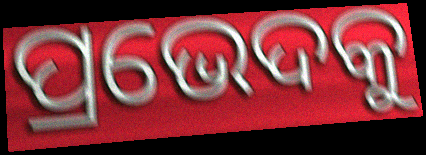
ପ୍ରଭେଦକୁ